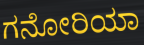
ಗನೋರಿಯಾ